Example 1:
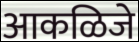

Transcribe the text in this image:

आकळिजे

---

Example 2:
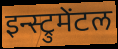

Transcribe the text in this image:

इन्स्ट्रुमेंटल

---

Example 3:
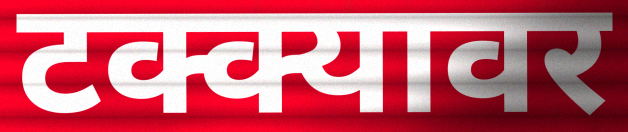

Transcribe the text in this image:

टक्क्यावर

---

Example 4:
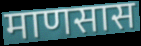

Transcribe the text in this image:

माणसास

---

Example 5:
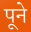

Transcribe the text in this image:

पूने